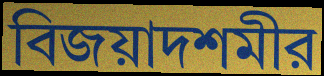
বিজয়াদশমীর